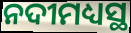
ନଦୀମଧ୍ୟସ୍ଥ